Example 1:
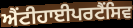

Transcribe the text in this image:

ਐਂਟੀਹਾਈਪਰਟੈਂਸਿਵ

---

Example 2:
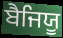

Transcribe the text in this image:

ਬੈਜਿਯੂ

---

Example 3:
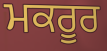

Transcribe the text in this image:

ਮਕਰੂਰ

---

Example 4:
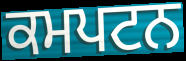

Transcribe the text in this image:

ਕਮਪਟਨ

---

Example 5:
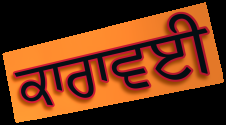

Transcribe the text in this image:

ਕਾਰਾਵਈ